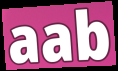
aab